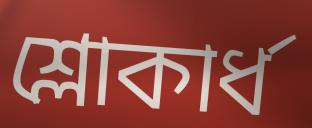
শ্লোকার্ধ